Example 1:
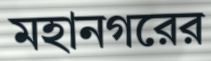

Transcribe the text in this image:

মহানগরের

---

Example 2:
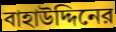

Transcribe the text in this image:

বাহাউদ্দিনের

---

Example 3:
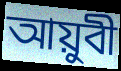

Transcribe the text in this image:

আয়ুবী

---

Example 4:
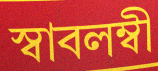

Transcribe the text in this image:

স্বাবলম্বী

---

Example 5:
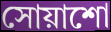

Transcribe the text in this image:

সোয়াশো